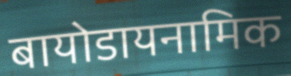
बायोडायनामिक